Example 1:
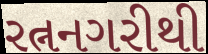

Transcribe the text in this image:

રત્નનગરીથી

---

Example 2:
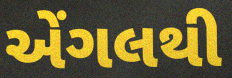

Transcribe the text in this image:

એંગલથી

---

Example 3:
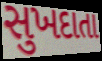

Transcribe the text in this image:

સુખદાતા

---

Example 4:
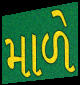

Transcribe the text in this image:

માળે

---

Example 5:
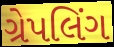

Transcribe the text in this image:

ગ્રેપલિંગ